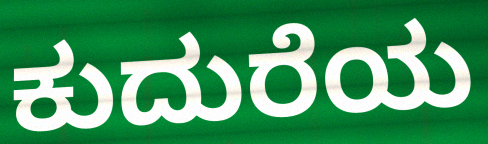
ಕುದುರೆಯ